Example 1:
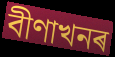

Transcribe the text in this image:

বীণাখনৰ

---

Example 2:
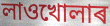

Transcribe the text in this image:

লাওখোলাৰ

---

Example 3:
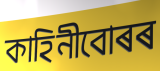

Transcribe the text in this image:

কাহিনীবোৰৰ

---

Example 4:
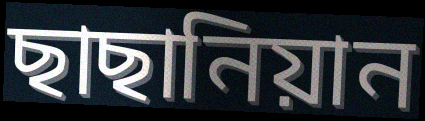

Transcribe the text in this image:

ছাছানিয়ান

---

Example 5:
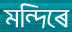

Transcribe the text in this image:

মন্দিৰে